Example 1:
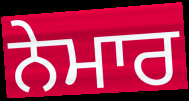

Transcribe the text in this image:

ਨੇਮਾਰ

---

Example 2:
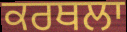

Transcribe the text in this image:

ਕਰਥਲਾ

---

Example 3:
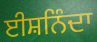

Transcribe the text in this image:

ਈਸ਼ਨਿੰਦਾ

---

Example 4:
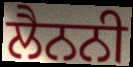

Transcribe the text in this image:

ਲੈਨਨੀ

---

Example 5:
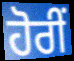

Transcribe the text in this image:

ਹੋਰੀਂ